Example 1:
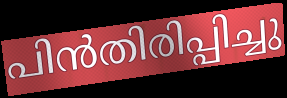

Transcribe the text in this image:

പിൻതിരിപ്പിച്ചു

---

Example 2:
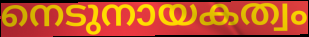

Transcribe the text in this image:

നെടുനായകത്വം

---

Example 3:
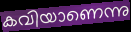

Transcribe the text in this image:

കവിയാണെന്നു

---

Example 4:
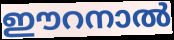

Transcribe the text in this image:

ഈറനാൽ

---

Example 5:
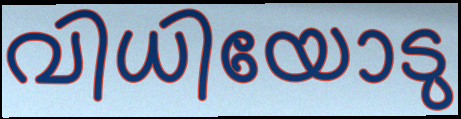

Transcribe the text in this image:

വിധിയോടു